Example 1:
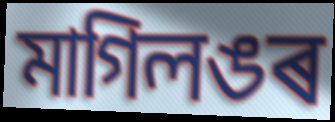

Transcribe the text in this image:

মাগিলঙৰ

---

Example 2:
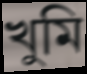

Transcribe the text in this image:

খুমি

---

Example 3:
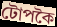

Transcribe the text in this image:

টোপকৈ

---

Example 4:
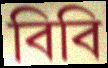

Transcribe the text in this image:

বিবি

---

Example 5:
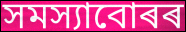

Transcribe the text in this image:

সমস্যাবোৰৰ